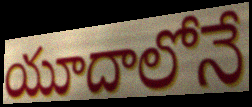
యూదాలోనే